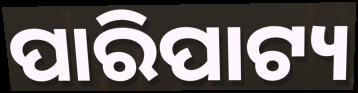
ପାରିପାଟ୍ୟ